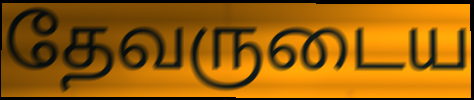
தேவருடைய